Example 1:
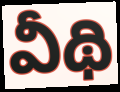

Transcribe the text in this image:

వీథి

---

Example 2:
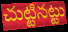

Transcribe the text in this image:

చుట్టినట్టు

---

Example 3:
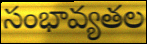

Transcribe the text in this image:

సంభావ్యతల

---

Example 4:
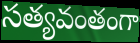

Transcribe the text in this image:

సత్యవంతంగా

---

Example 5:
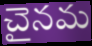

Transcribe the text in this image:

చైనమ